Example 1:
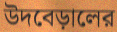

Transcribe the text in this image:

উদবেড়ালের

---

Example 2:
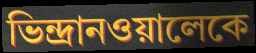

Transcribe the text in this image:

ভিন্দ্রানওয়ালেকে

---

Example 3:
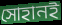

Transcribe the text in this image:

সোহানই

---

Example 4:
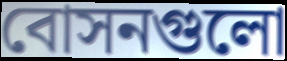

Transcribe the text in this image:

বোসনগুলো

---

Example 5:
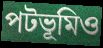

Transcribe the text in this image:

পটভূমিও